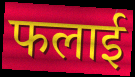
फलाई